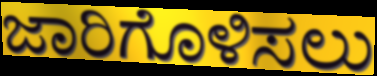
ಜಾರಿಗೊಳಿಸಲು